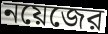
নয়েজের